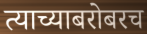
त्याच्याबरोबरच